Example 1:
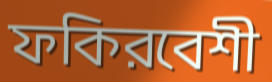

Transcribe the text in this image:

ফকিরবেশী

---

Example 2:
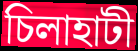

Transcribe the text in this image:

চিলাহাটী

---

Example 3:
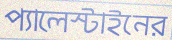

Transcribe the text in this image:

প্যালেস্টাইনের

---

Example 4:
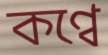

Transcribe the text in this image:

কণ্বে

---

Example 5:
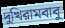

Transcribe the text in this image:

দুখিরামবাবু